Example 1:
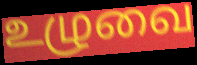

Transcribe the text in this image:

உழுவை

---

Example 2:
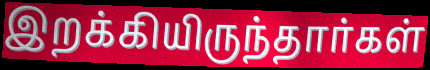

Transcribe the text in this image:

இறக்கியிருந்தார்கள்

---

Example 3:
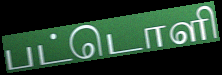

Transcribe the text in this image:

பட்டொளி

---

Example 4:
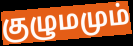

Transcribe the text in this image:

குழுமமும்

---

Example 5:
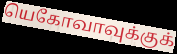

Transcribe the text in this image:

யெகோவாவுக்குக்